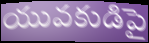
యువకుడిపై